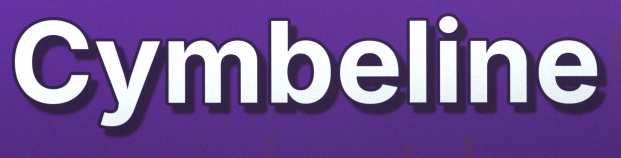
Cymbeline